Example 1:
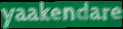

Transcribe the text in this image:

yaakendare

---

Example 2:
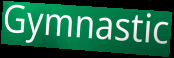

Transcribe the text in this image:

Gymnastic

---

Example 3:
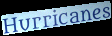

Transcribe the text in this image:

Hurricanes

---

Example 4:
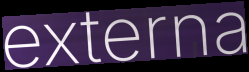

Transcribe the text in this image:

externa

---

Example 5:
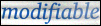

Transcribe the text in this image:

modifiable